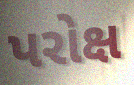
પરોક્ષ